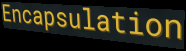
Encapsulation